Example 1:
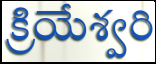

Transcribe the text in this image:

క్రియేశ్వరి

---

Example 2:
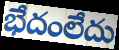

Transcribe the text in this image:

భేదంలేదు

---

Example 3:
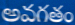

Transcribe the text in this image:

అవగతం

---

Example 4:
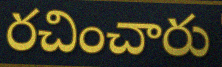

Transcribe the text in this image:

రచించారు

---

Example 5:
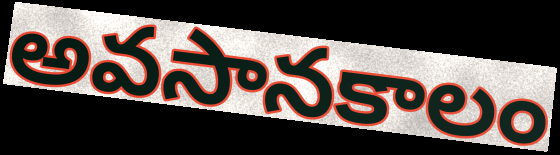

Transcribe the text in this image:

అవసానకాలం